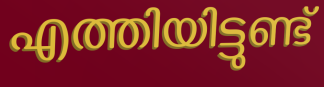
എത്തിയിട്ടുണ്ട്